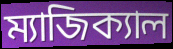
ম্যাজিক্যাল